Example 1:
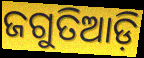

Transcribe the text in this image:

ଜଗୁତିଆଡ଼ି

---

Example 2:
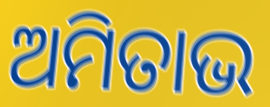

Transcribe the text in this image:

ଅମିତାଭ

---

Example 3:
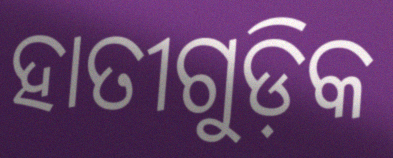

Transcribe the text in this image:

ହାତୀଗୁଡ଼ିକ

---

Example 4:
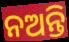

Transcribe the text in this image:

ନଅନ୍ତି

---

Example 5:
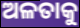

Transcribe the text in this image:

ଅଳତାକୁ